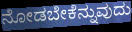
ನೋಡಬೇಕೆನ್ನುವುದು